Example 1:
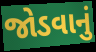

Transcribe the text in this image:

જોડવાનું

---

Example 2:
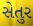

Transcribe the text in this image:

સેતુર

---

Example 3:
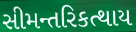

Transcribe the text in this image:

સીમન્તરિકત્થાય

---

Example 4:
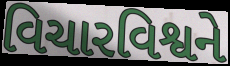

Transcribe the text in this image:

વિચારવિશ્વને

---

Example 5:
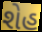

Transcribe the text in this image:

શેહ